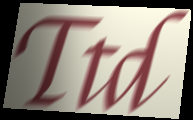
Ttd